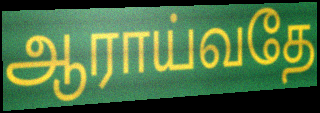
ஆராய்வதே